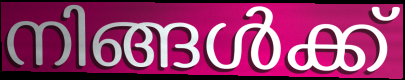
നിങ്ങൾക്ക്